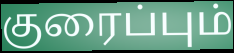
குரைப்பும்